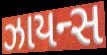
ઝાયન્સ